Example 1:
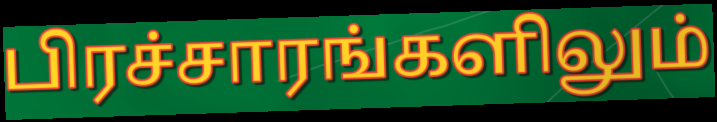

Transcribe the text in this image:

பிரச்சாரங்களிலும்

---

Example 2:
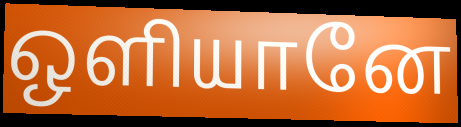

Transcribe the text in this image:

ஒளியானே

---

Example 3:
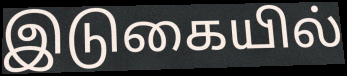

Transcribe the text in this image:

இடுகையில்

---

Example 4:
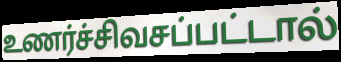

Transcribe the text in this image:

உணர்ச்சிவசப்பட்டால்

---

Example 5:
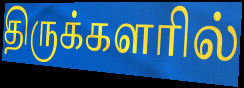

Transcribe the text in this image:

திருக்களரில்